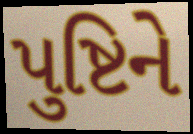
પુષ્ટિને